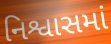
નિશ્વાસમાં